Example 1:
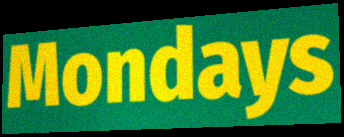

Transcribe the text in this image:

Mondays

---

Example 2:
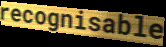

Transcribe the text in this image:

recognisable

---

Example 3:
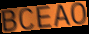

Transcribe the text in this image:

BCEAO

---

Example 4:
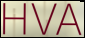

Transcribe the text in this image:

HVA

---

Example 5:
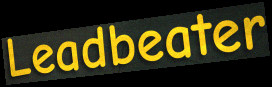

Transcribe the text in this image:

Leadbeater